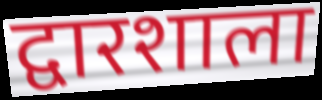
द्वारशाला